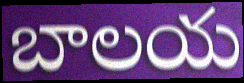
బాలయ